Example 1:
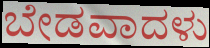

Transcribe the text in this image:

ಬೇಡವಾದಳು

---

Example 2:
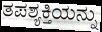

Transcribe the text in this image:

ತಪಶ್ಯಕ್ತಿಯನ್ನು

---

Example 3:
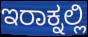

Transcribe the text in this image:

ಇರಾಕ್ನಲ್ಲಿ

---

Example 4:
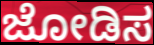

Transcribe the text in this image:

ಜೋಡಿಸ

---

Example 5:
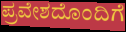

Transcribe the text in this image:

ಪ್ರವೇಶದೊಂದಿಗೆ